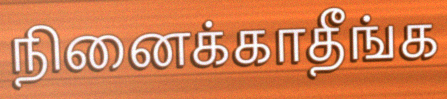
நினைக்காதீங்க